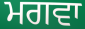
ਮਗਵਾ